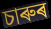
চাৰুৰ